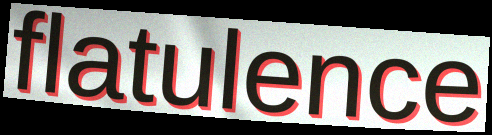
flatulence